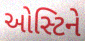
ઓસ્ટિને